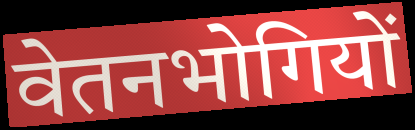
वेतनभोगियों